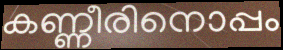
കണ്ണീരിനൊപ്പം